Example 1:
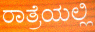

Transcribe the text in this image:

ರಾತ್ರೆಯಲ್ಲಿ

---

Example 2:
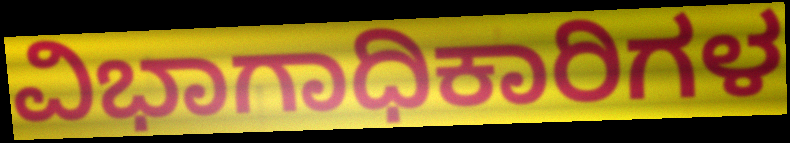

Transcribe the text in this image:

ವಿಭಾಗಾಧಿಕಾರಿಗಳ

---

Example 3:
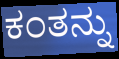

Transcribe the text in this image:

ಕಂತನ್ನು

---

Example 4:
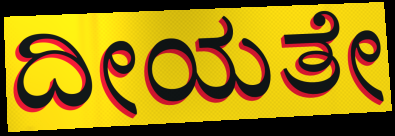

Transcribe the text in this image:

ದೀಯತೇ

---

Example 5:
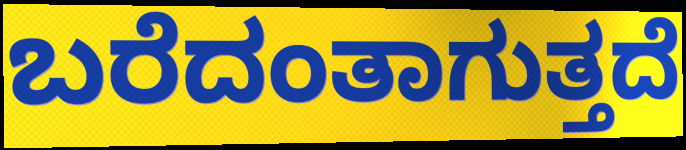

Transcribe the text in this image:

ಬರೆದಂತಾಗುತ್ತದೆ